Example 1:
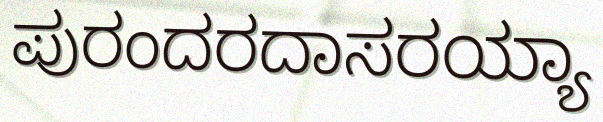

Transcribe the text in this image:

ಪುರಂದರದಾಸರಯ್ಯಾ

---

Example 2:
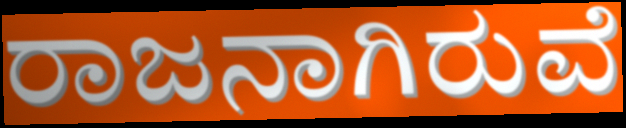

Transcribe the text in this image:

ರಾಜನಾಗಿರುವೆ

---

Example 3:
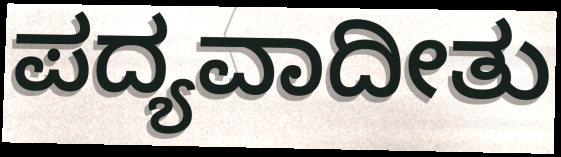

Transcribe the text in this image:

ಪದ್ಯವಾದೀತು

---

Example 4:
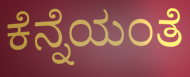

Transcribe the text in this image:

ಕೆನ್ನೆಯಂತೆ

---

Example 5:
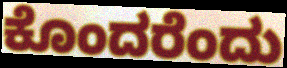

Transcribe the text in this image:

ಕೊಂದರೆಂದು